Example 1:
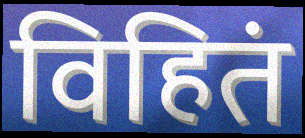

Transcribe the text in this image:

विहितं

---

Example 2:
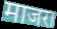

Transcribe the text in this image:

माजरा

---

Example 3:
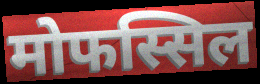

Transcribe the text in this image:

मोफस्सिल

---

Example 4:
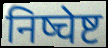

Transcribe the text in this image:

निष्चेष्ट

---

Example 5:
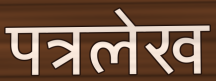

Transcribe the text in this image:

पत्रलेख